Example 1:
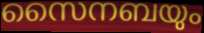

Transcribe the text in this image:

സൈനബയും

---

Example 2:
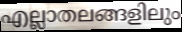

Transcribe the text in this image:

എല്ലാതലങ്ങളിലും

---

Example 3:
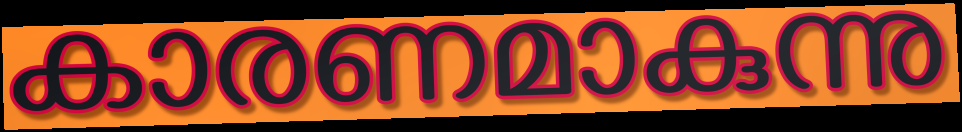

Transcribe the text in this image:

കാരണമാകുന്നു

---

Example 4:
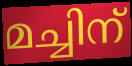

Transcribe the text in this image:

മച്ചിന്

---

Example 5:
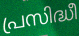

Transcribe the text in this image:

പ്രസിദ്ധീ